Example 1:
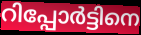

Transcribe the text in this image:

റിപ്പോർട്ടിനെ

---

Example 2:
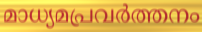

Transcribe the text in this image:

മാധ്യമപ്രവർത്തനം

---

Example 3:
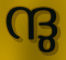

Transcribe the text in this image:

ന്ദു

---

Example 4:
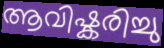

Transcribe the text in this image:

ആവിഷ്കരിച്ചു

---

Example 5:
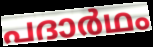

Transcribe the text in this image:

പദാർഥം